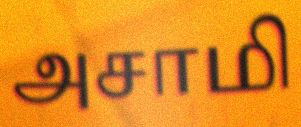
அசாமி